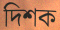
দিশক